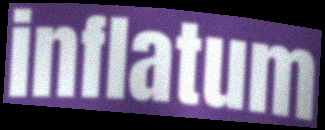
inflatum